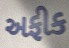
અફીક